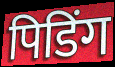
पिडिंग